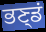
ਭਣ੍ਡਂ